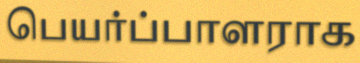
பெயர்ப்பாளராக